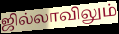
ஜில்லாவிலும்